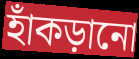
হাঁকড়ানো